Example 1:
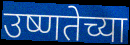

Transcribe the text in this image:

उष्णतेच्या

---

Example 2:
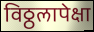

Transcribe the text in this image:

विठ्ठलापेक्षा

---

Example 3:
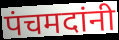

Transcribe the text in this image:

पंचमदांनी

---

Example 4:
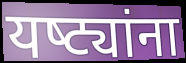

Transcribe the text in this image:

यष्ट्यांना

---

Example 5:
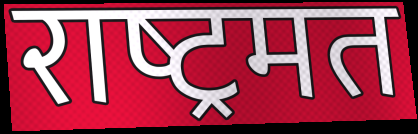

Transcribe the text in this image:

राष्ट्रमत